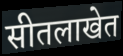
सीतलाखेत